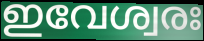
ഇവേശ്വരഃ